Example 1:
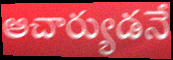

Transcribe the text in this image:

ఆచార్యుడనే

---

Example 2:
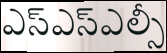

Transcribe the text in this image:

ఎస్ఎస్ఎల్సీ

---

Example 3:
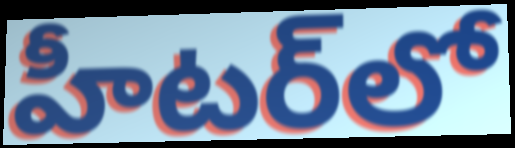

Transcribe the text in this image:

హీటర్‌లో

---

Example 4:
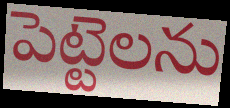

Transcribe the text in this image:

పెట్టెలను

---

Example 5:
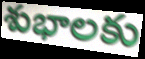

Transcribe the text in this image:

శుభాలకు